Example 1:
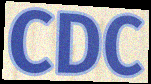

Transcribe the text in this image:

CDC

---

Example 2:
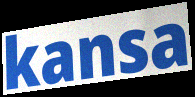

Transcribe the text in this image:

kansa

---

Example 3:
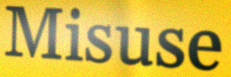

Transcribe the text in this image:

Misuse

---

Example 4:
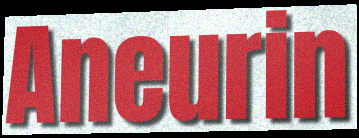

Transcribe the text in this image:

Aneurin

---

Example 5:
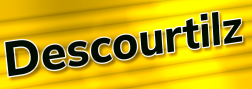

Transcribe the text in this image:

Descourtilz